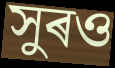
সুৰও